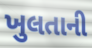
ખુલતાની